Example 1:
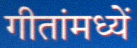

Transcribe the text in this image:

गीतांमध्यें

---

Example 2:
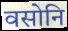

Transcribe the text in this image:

वसोनि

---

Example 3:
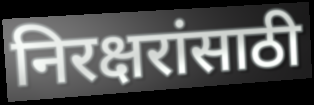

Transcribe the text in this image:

निरक्षरांसाठी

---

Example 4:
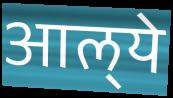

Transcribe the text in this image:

आल्ये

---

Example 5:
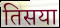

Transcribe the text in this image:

तिसया